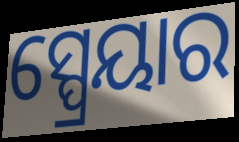
ସ୍ପ୍ରେୟାର